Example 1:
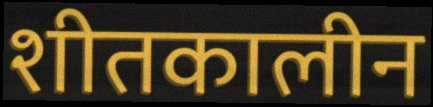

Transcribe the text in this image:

शीतकालीन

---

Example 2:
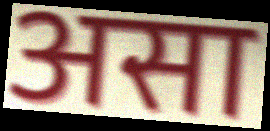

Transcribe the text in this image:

असा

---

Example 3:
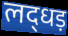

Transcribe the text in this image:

लद्धड़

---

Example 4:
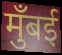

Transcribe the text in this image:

मुँबई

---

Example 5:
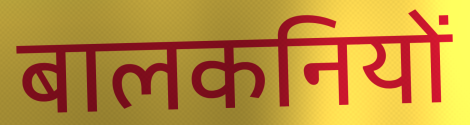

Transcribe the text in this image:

बालकनियों